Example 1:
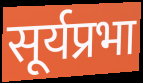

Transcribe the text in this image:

सूर्यप्रभा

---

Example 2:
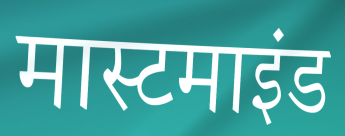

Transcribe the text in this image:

मास्टमाइंड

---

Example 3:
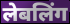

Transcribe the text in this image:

लेबलिंग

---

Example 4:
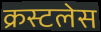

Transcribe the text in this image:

क्रस्टलेस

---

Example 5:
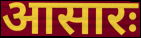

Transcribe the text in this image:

आसारः